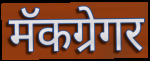
मॅकग्रेगर